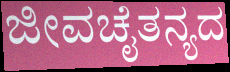
ಜೀವಚೈತನ್ಯದ